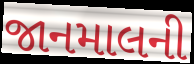
જાનમાલની